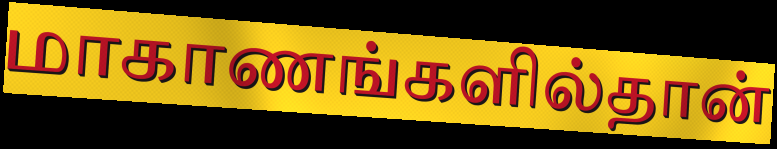
மாகாணங்களில்தான்